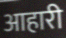
आहारी